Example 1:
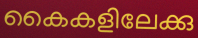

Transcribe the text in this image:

കൈകളിലേക്കു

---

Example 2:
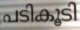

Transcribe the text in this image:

പടികൂടി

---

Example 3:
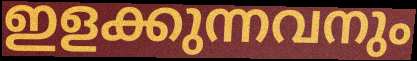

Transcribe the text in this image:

ഇളക്കുന്നവനും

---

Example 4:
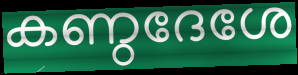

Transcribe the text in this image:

കണ്ഠദേശേ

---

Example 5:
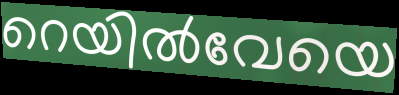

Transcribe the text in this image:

റെയിൽവേയെ